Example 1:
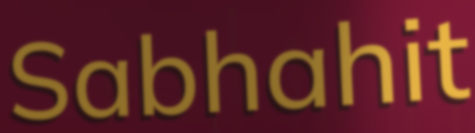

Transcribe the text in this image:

Sabhahit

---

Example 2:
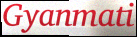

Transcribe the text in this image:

Gyanmati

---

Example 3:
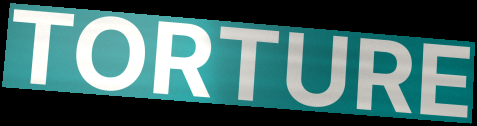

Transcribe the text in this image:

TORTURE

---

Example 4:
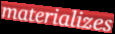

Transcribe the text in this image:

materializes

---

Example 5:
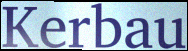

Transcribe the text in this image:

Kerbau